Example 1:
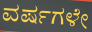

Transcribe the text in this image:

ವರ್ಷಗಳೇ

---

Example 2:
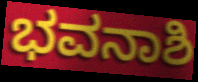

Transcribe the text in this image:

ಭವನಾಶಿ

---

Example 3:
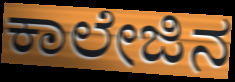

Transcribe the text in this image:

ಕಾಲೇಜಿನ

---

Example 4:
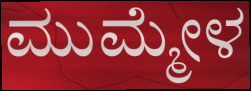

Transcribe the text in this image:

ಮುಮ್ಮೇಳ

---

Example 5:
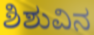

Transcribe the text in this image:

ಶಿಶುವಿನ